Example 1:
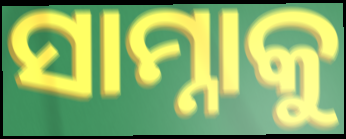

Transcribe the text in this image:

ସାମ୍ନାକୁ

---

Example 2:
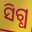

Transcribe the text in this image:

ସିଗ୍ଧ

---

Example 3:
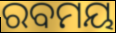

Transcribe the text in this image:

ରବମୟ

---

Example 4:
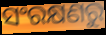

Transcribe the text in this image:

ସଂରକ୍ଷଣରୁ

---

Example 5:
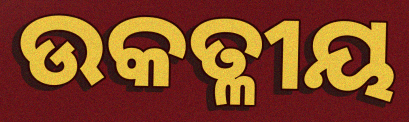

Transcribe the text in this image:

ଉକତ୍ଳୀୟ